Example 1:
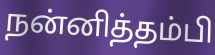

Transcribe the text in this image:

நன்னித்தம்பி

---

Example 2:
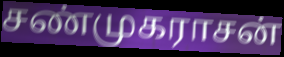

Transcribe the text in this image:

சண்முகராசன்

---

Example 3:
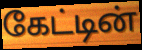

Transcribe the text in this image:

கேட்டின்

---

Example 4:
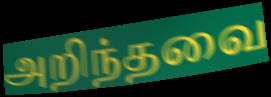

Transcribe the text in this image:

அறிந்தவை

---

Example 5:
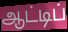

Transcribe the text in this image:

ஆட்டிப்